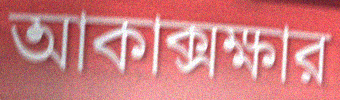
আকাক্সক্ষার